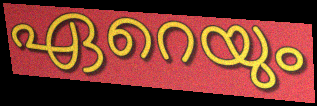
ഏറെയും